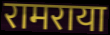
रामराया